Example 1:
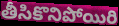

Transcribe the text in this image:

తీసికొనిపోయిరి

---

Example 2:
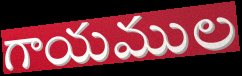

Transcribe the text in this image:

గాయముల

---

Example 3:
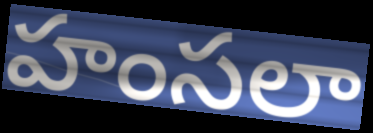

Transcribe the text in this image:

హంసలా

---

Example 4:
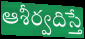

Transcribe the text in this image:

ఆశీర్వదిస్తే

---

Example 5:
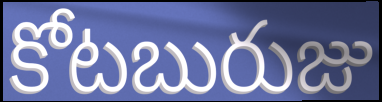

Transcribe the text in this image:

కోటబురుజు